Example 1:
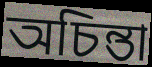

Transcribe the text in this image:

অচিন্তা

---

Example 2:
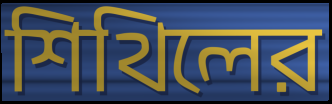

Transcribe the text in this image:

শিথিলের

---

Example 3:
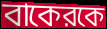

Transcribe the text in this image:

বাকেরকে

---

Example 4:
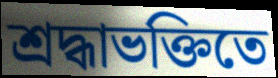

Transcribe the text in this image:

শ্রদ্ধাভক্তিতে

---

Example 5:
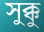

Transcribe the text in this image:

সুক্কু